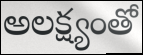
అలక్ష్యంతో